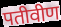
पतीवीण